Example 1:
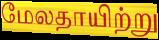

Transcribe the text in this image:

மேலதாயிற்று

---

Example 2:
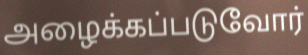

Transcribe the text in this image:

அழைக்கப்படுவோர்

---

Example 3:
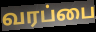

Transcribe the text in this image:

வரப்பை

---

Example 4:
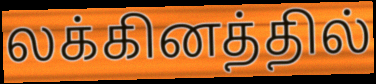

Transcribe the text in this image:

லக்கினத்தில்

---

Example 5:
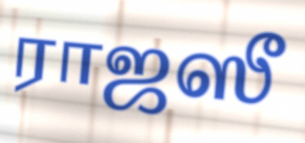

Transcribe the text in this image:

ராஜஸீ